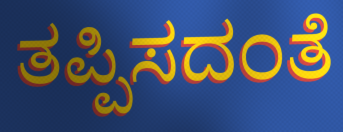
ತಪ್ಪಿಸದಂತೆ